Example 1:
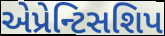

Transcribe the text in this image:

એપ્રેન્ટિસશિપ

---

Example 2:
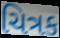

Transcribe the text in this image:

ચિત્રક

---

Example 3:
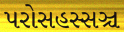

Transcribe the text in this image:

પરોસહસ્સઞ્ચ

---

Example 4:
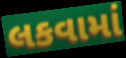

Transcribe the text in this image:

લકવામાં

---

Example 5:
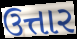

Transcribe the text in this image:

ઉત્તાર